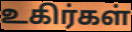
உகிர்கள்